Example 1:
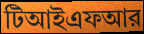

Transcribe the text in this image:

টিআইএফআর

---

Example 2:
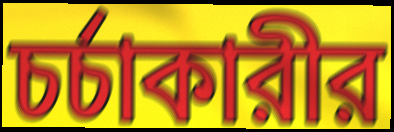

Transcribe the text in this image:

চর্চাকারীর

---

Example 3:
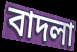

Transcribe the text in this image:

বাদলা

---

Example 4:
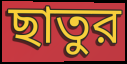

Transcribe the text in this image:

ছাতুর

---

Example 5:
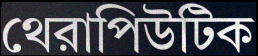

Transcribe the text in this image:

থেরাপিউটিক